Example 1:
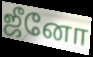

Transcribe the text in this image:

ஜீனோ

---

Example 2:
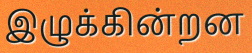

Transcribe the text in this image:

இழுக்கின்றன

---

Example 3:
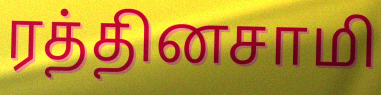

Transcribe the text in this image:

ரத்தினசாமி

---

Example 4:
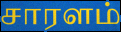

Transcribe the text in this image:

சாரளம்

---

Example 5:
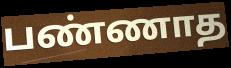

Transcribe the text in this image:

பண்ணாத